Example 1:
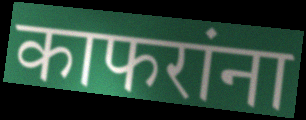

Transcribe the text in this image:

काफरांना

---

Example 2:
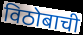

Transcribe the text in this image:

विठोबाची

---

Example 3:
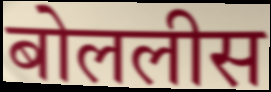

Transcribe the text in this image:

बोललीस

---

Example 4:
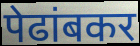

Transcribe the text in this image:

पेढांबकर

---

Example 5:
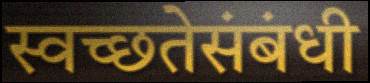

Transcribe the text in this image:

स्वच्छतेसंबंधी